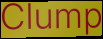
Clump